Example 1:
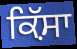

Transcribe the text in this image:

ਕ਼ਿੱਸਾ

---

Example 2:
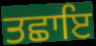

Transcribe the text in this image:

ਤਛਾਇ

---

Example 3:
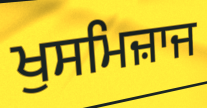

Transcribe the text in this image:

ਖੁਸਮਿਜ਼ਾਜ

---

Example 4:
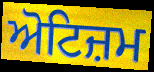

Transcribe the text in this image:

ਅੋਟਿਜ਼ਮ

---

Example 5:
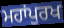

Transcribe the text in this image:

ਮਹਾਂਪੁਰਖ